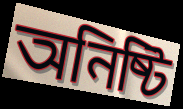
অনিষ্টি